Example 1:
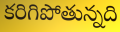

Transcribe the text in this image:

కరిగిపోతున్నది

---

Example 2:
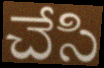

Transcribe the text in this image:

చేసి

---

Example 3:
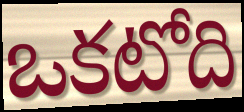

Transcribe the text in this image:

ఒకటోది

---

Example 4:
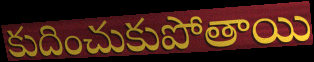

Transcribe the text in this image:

కుదించుకుపోతాయి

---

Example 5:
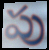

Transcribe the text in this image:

పు